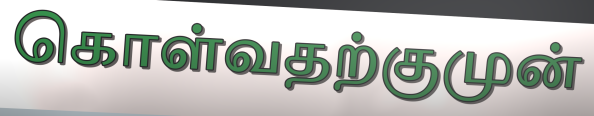
கொள்வதற்குமுன்